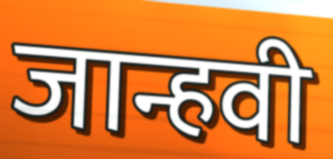
जान्हवी